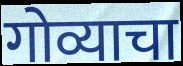
गोव्याचा